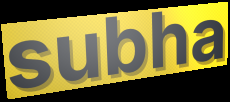
subha